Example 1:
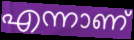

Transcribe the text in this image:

എന്നാണ്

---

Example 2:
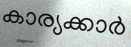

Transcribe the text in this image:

കാര്യക്കാർ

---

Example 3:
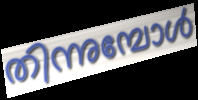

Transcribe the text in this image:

തിന്നുമ്പോൾ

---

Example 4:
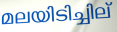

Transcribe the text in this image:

മലയിടിച്ചില്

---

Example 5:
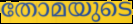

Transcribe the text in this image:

തോമയുടെ